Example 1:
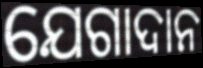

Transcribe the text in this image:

ଯେଗାଦାନ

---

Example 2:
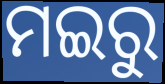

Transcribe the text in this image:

ମଇରୁ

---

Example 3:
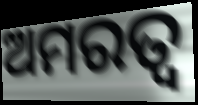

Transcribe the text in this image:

ଅମରତ୍ଵ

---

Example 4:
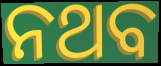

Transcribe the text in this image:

ନଥବ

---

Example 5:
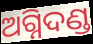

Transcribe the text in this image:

ଅଗ୍ନିଦଣ୍ଡ